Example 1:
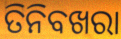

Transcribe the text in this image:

ତିନିବଖରା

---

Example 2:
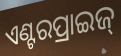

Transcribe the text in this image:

ଏଣ୍ଟରପ୍ରାଇଜ୍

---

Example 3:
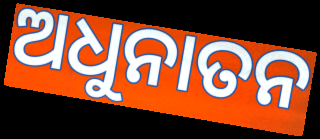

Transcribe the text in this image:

ଅଧୁନାତନ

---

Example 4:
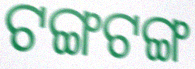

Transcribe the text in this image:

ଟଙ୍ଗଟଙ୍ଗ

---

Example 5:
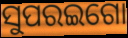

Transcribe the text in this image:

ସୁପରଇଗୋ